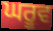
ਘਰੂਵ